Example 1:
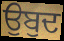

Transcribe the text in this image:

ਉਬੁਦ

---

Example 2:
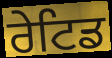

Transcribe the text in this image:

ਰੇਟਿਡ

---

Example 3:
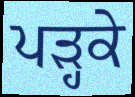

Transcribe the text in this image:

ਪੜ੍ਹਕੇ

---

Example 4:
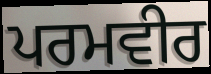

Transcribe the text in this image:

ਪਰਮਵੀਰ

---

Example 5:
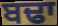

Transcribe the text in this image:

ਬਢਾ